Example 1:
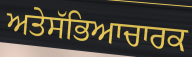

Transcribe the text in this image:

ਅਤੇਸੱਭਿਆਚਾਰਕ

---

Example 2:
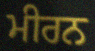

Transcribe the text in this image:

ਮੀਰਨ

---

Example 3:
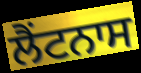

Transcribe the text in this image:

ਲੈਂਟਨਾਸ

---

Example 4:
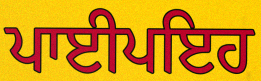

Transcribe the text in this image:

ਪਾਈਪਇਹ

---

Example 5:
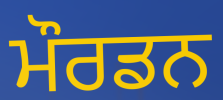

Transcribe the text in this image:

ਮੌਰਡਨ